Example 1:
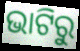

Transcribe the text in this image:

ଭାଟିରୁ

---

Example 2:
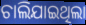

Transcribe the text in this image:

ଚାଲିଯାଇଥିଲା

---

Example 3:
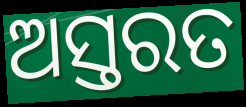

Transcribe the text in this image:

ଅସ୍ତରତ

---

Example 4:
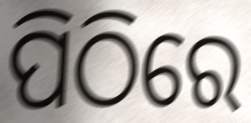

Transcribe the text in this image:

ପିଠିରେ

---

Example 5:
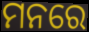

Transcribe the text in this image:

ମନରେ